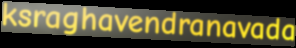
ksraghavendranavada